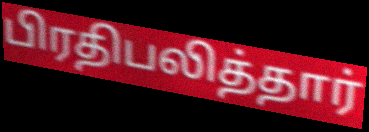
பிரதிபலித்தார்